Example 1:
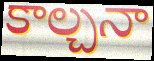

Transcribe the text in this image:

కాల్చనా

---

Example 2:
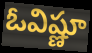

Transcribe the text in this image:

ఓవిష్ణూ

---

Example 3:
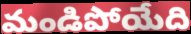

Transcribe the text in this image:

మండిపోయేది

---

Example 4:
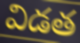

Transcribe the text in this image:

విడత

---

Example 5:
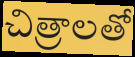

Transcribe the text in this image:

చిత్రాలతో